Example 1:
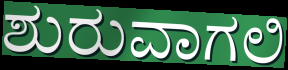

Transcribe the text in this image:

ಶುರುವಾಗಲಿ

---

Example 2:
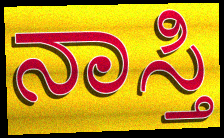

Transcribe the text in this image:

ನಾಸ್ತಿ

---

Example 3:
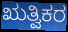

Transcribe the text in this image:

ಋತ್ವಿಕರ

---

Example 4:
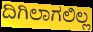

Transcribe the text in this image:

ದಿಗಿಲಾಗಲಿಲ್ಲ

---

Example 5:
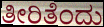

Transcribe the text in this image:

ತೀರಿತೆಂದು